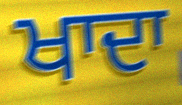
ਖਾਦਾ